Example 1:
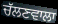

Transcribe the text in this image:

ਚੱਲਣਵਾਲਾ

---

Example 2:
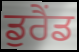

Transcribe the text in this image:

ਡੁਰੈਂਡ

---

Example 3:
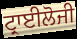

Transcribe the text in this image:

ਟ੍ਰਾਈਲੋਜੀ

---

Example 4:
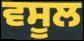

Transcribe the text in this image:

ਵਸੂਲ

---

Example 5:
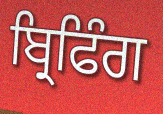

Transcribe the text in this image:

ਬ੍ਰਿਫਿੰਗ